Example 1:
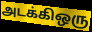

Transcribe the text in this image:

அடக்கிஒரு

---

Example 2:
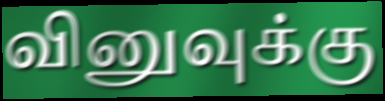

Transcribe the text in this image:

வினுவுக்கு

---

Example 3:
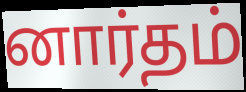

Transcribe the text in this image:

னார்தம்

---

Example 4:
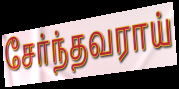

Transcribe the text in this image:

சேர்ந்தவராய்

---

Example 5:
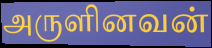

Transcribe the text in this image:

அருளினவன்